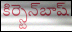
కిర్స్టెన్‌బాష్